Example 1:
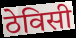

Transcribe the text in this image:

ठेविसी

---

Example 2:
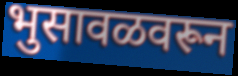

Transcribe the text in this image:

भुसावळवरून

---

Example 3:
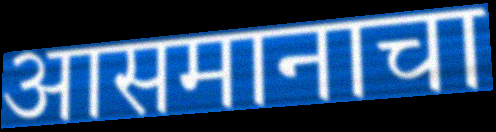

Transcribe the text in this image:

आसमानाचा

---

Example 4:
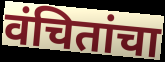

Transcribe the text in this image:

वंचितांचा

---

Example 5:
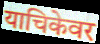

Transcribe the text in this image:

याचिकेवर